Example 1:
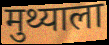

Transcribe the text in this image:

मुथ्याला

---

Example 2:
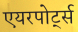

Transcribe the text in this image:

एयरपोर्ट्स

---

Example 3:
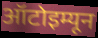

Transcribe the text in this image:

ऑटोइम्‍यून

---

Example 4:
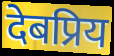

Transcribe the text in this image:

देबप्रिय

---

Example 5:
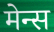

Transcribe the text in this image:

मेन्स